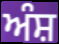
ਅੰਸ਼